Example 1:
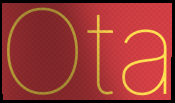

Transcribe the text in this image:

Ota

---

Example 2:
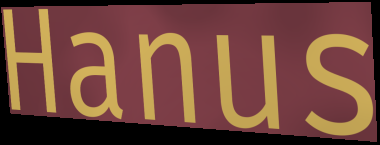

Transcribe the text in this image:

Hanus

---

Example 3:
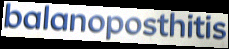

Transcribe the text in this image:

balanoposthitis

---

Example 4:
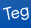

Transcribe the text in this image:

Teg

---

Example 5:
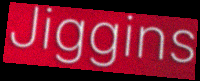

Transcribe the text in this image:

Jiggins